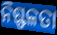
ନିଷ୍ଫଳତା